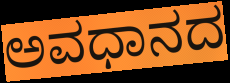
ಅವಧಾನದ